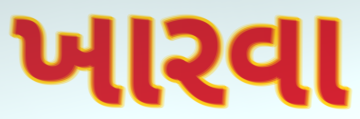
ખારવા